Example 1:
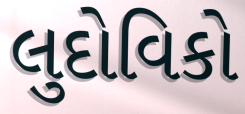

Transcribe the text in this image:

લુદોવિકો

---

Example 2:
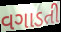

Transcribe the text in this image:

વગાડતી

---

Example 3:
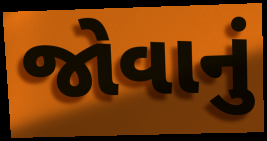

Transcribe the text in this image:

જોવાનું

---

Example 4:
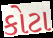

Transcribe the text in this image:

કોટા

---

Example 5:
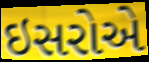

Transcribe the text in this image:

ઇસરોએ